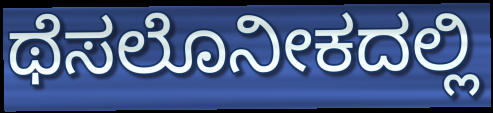
ಥೆಸಲೊನೀಕದಲ್ಲಿ